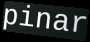
pinar